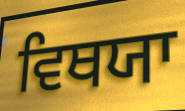
ਵਿਥਯਾ